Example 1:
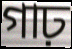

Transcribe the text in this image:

গাঢ়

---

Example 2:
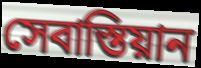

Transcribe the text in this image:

সেবাস্তিয়ান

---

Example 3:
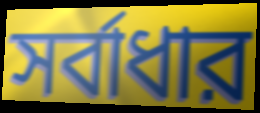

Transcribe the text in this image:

সর্বাধার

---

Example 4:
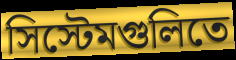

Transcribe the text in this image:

সিস্টেমগুলিতে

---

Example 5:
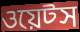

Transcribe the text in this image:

ওয়েট্স